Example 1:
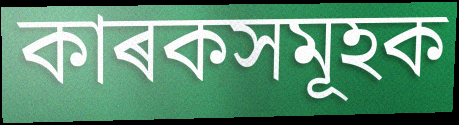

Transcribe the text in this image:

কাৰকসমূহক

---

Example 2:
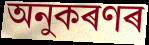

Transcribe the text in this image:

অনুকৰণৰ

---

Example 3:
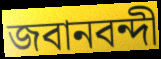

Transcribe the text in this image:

জবানবন্দী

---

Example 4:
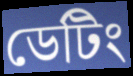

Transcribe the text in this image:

ডেটিং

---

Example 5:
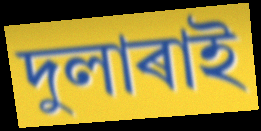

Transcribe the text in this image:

দুলাৰাই